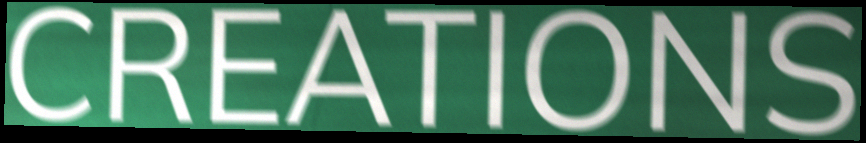
CREATIONS